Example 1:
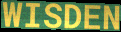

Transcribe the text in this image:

WISDEN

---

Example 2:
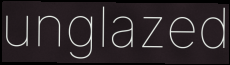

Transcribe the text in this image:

unglazed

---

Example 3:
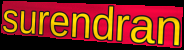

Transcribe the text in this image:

surendran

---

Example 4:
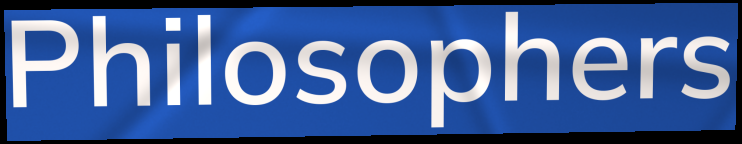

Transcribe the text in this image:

Philosophers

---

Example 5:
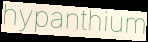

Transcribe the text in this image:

hypanthium